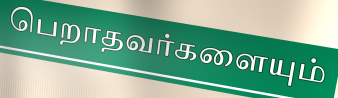
பெறாதவர்களையும்